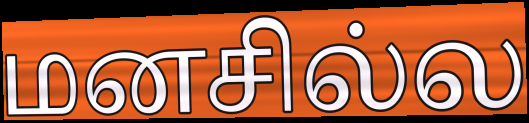
மனசில்ல